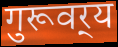
गुरूवर्य